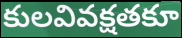
కులవివక్షతకూ